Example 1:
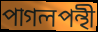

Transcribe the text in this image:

পাগলপন্থী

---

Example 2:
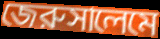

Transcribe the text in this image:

জেরুসালেমে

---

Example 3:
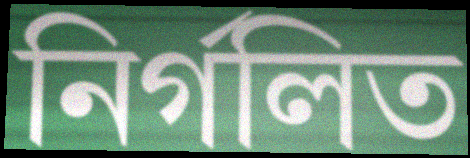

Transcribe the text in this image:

নির্গলিত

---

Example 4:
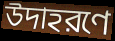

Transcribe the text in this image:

উদাহরণে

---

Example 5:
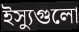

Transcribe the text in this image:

ইস্যুগুলো